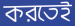
করতেই